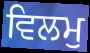
ਵਿਲਮੁ